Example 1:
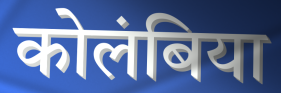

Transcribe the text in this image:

कोलंबिया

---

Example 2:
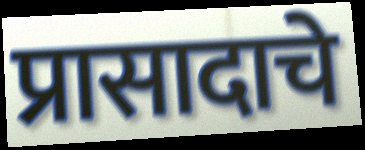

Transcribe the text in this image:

प्रासादाचे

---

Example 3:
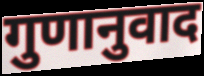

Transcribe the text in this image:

गुणानुवाद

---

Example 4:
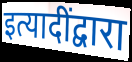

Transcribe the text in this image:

इत्यादींद्वारा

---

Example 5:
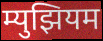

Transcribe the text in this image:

म्युझियम